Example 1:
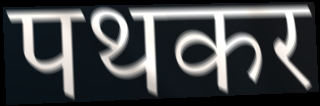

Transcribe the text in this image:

पथकर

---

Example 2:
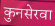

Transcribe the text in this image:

कुनसेरवा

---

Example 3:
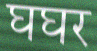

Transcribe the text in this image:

घघर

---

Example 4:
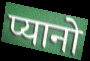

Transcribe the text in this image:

प्यानो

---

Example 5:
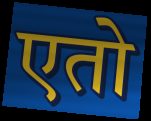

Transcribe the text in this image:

एतो